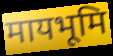
मायभूमि